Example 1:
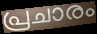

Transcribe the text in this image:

പ്രചാരം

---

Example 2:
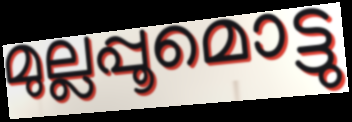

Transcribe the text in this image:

മുല്ലപ്പൂമൊട്ടു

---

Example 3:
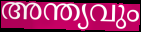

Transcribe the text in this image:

അന്ത്യവും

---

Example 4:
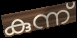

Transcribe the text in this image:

കുന്ന്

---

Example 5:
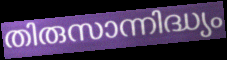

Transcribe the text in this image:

തിരുസാന്നിദ്ധ്യം